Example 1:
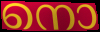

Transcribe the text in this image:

നൊ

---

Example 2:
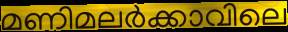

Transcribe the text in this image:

മണിമലർക്കാവിലെ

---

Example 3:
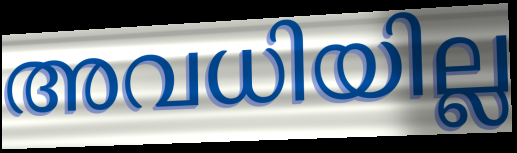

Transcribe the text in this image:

അവധിയില്ല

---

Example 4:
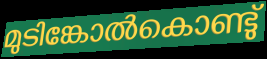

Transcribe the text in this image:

മുടിങ്കോൽകൊണ്ടു്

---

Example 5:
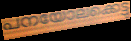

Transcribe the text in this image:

പനയോലക്കെട്ടു